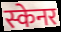
स्‍केनर